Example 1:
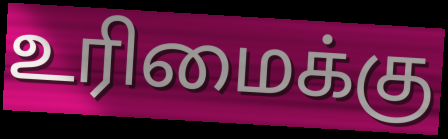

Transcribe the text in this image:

உரிமைக்கு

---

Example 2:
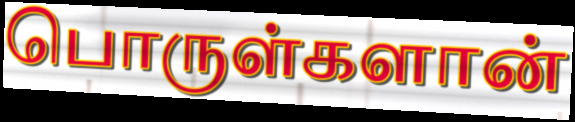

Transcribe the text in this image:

பொருள்களான்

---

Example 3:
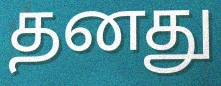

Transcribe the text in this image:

தனது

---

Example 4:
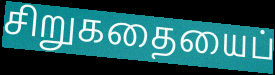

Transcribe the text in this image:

சிறுகதையைப்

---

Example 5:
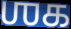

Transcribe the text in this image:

ஶக